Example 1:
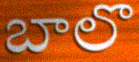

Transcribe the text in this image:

బాలొ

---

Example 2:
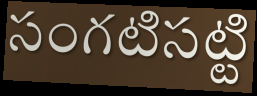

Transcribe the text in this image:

సంగటిసట్టి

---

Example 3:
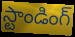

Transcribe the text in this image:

స్టాండింగ్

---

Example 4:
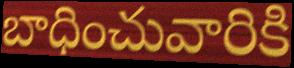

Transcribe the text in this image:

బాధించువారికి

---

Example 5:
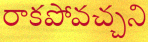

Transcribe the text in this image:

రాకపోవచ్చని